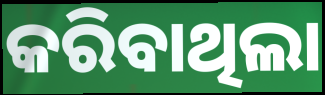
କରିବାଥିଲା